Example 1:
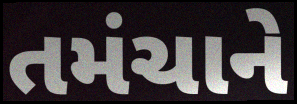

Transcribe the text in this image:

તમંચાને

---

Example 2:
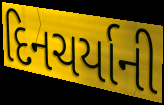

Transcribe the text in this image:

દિનચર્યાની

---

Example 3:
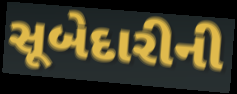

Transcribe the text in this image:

સૂબેદારીની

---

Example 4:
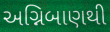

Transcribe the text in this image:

અગ્નિબાણથી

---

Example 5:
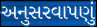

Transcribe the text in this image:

અનુસરવાપણું